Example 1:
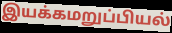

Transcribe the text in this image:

இயக்கமறுப்பியல்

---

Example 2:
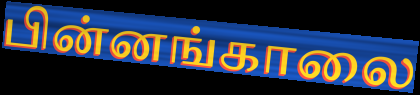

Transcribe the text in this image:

பின்னங்காலை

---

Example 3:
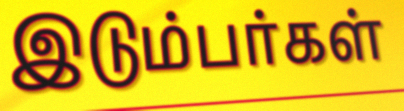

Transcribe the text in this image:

இடும்பர்கள்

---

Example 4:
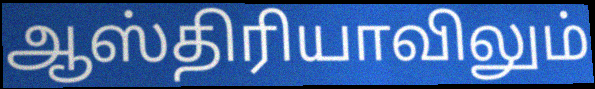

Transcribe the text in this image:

ஆஸ்திரியாவிலும்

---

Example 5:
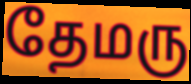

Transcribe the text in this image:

தேமரு